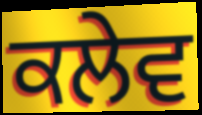
ਕਲੇਵ